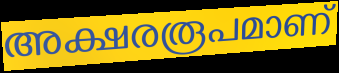
അക്ഷരരൂപമാണ്